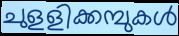
ചുളളിക്കമ്പുകൾ